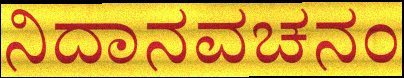
ನಿದಾನವಚನಂ